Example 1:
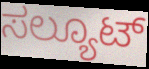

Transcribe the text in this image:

ಸಲ್ಯೂಟ್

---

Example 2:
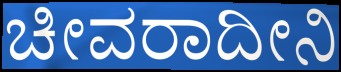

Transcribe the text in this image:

ಚೀವರಾದೀನಿ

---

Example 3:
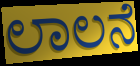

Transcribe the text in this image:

ಲಾಲನೆ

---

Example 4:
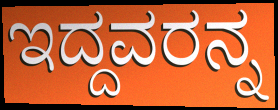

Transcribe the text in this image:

ಇದ್ದವರನ್ನ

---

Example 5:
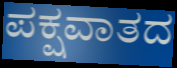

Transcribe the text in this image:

ಪಕ್ಷವಾತದ